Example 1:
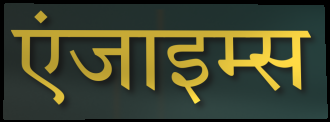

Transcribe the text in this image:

एंजाइम्‍स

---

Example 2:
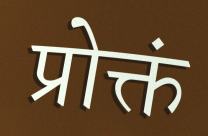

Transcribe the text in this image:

प्रोक्तं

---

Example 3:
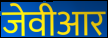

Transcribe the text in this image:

जेवीआर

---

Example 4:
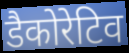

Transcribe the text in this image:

डैकोरेटिव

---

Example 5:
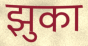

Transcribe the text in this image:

झुका